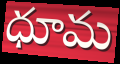
ధూమ